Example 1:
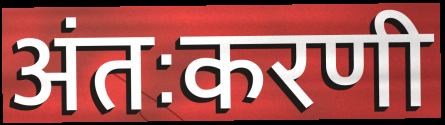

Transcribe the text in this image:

अंतःकरणी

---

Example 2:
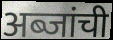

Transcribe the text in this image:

अब्जांची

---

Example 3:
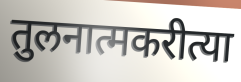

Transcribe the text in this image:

तुलनात्मकरीत्या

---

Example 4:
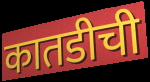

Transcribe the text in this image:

कातडीची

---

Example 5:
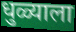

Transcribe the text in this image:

धुळ्याला